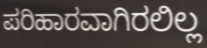
ಪರಿಹಾರವಾಗಿರಲಿಲ್ಲ